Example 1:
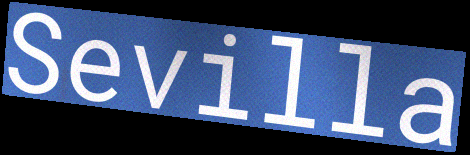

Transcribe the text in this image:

Sevilla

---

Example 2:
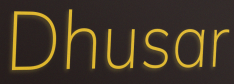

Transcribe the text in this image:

Dhusar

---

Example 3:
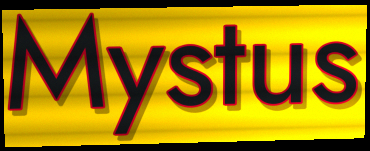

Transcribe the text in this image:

Mystus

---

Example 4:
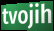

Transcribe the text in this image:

tvojih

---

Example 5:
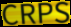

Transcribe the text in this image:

CRPS